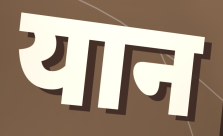
यान